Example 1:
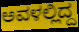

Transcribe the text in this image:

ಅವಳಲ್ಲಿದ್ದ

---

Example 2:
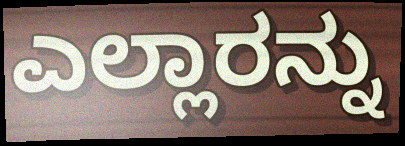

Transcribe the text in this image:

ಎಲ್ಲಾರನ್ನು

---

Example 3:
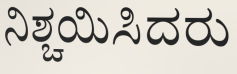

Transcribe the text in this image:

ನಿಶ್ಚಯಿಸಿದರು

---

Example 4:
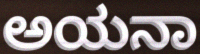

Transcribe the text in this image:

ಅಯನಾ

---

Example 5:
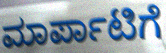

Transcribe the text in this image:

ಮಾರ್ಪಾಟಿಗೆ